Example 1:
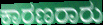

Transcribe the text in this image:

ಕಾರಣರಾರು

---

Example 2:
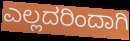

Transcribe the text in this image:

ಎಲ್ಲದರಿಂದಾಗಿ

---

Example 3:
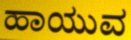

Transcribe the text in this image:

ಹಾಯುವ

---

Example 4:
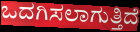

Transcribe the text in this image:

ಒದಗಿಸಲಾಗುತ್ತಿದೆ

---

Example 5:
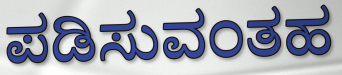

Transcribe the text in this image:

ಪಡಿಸುವಂತಹ